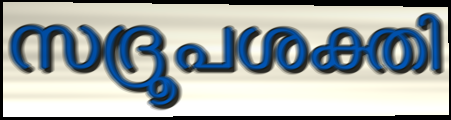
സദ്രൂപശക്തി